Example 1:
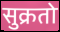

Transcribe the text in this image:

सुक्रतो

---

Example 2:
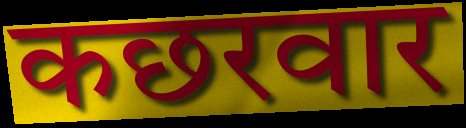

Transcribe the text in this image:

कछरवार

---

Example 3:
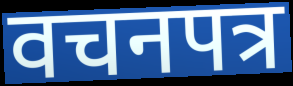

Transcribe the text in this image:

वचनपत्र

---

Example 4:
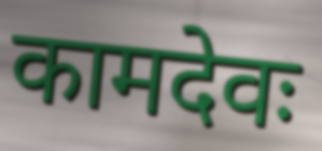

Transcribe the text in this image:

कामदेवः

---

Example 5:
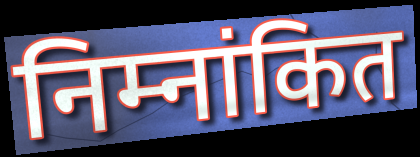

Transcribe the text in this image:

निम्नांकित